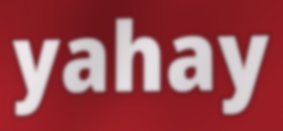
yahay